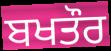
ਬਖਤੌਰ